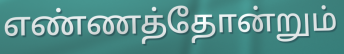
எண்ணத்தோன்றும்